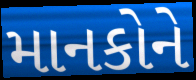
માનકોને